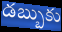
డబ్బుకు